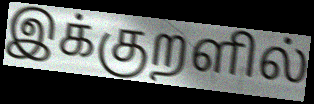
இக்குறளில்